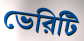
ভেরিটি